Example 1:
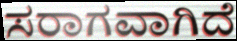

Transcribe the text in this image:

ಸರಾಗವಾಗಿದೆ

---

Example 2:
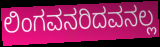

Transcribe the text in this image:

ಲಿಂಗವನರಿದವನಲ್ಲ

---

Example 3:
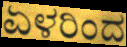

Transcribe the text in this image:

ಏಳರಿಂದ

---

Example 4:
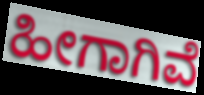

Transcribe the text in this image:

ಹೀಗಾಗಿವೆ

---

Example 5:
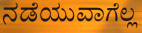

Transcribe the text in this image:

ನಡೆಯುವಾಗೆಲ್ಲ